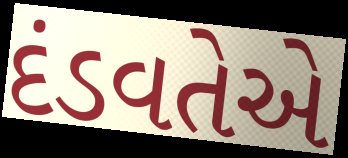
દંડવતેએ